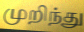
முறிந்து